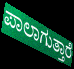
ಪಾಲಾಗುತ್ತಾರೆ